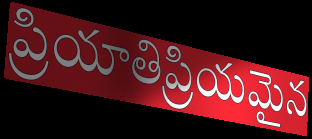
ప్రియాతిప్రియమైన